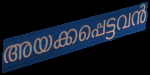
അയക്കപ്പെട്ടവൻ